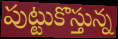
పుట్టుకొస్తున్న